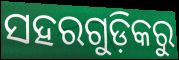
ସହରଗୁଡ଼ିକରୁ